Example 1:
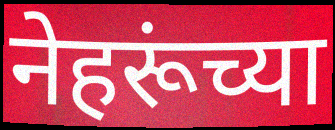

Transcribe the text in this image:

नेहरूंच्या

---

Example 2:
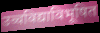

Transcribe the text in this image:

उच्चविद्याविभूषित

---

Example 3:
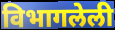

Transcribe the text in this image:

विभागलेली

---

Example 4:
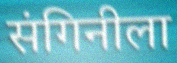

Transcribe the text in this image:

संगिनीला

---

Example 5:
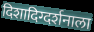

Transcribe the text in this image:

दिशादिग्दर्शनाला